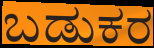
ಬಡುಕರ